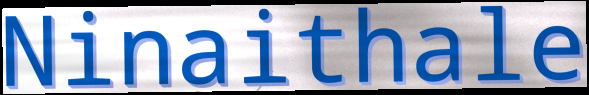
Ninaithale